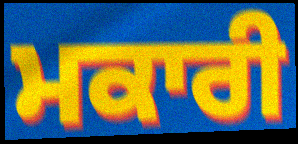
ਮਕਾਰੀ